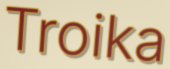
Troika